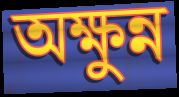
অক্ষুন্ন